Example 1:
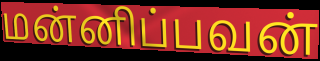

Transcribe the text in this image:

மன்னிப்பவன்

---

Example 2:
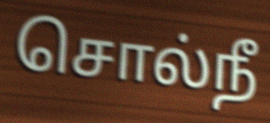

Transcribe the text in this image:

சொல்நீ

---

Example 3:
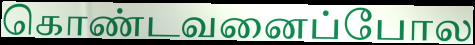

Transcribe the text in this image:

கொண்டவனைப்போல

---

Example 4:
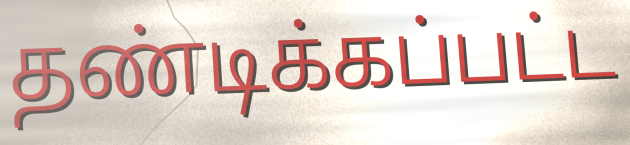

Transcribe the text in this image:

தண்டிக்கப்பட்ட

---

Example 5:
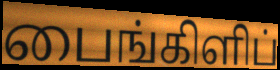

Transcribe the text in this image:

பைங்கிளிப்